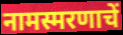
नामस्मरणाचें